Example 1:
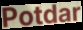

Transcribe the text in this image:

Potdar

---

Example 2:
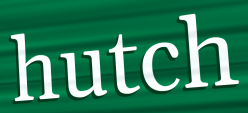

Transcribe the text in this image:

hutch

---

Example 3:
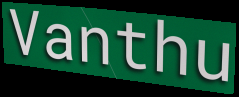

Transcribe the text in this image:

Vanthu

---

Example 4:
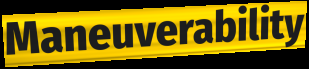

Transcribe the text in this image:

Maneuverability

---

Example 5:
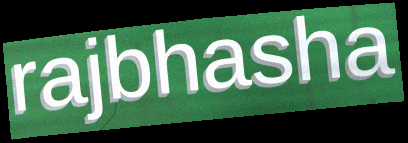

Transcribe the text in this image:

rajbhasha